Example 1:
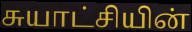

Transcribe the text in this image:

சுயாட்சியின்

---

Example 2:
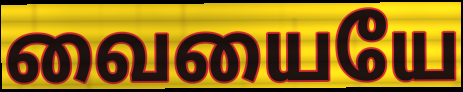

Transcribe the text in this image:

வையையே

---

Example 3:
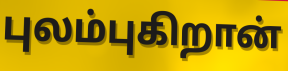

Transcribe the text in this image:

புலம்புகிறான்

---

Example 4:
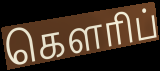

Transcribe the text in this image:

கௌரிப்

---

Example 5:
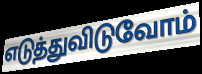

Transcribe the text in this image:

எடுத்துவிடுவோம்